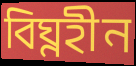
বিঘ্নহীন